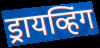
ड्रायव्हिंग